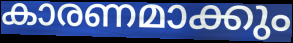
കാരണമാക്കും